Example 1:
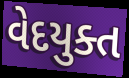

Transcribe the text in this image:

વેદયુક્ત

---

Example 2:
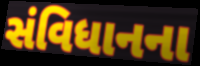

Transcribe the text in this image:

સંવિધાનના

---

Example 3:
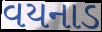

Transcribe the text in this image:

વયનાડ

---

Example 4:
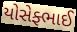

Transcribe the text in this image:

યોસેફ્ભાઈ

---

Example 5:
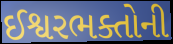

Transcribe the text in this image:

ઈશ્વરભક્તોની